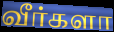
வீர்களா